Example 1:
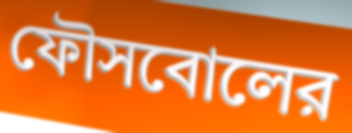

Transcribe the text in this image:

ফৌসবোলের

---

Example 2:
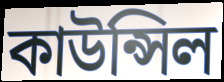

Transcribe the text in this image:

কাউন্সিল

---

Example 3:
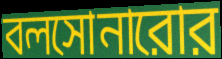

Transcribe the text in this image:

বলসোনারোর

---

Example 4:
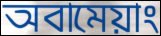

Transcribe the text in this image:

অবামেয়াং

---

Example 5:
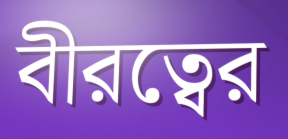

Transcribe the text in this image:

বীরত্বের